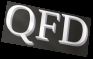
QFD